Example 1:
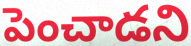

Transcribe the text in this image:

పెంచాడని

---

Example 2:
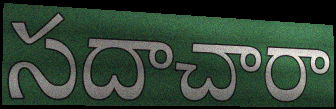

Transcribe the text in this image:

సదాచారా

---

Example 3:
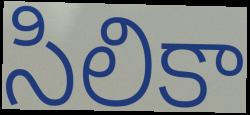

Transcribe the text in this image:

సిలికా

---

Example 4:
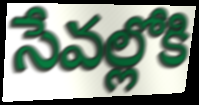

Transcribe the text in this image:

సేవల్లోకి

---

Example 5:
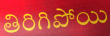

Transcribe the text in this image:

తిరిగిపోయి